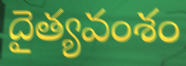
దైత్యవంశం